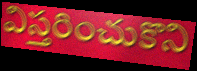
విస్తరించుకొని